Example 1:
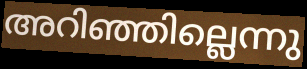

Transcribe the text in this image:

അറിഞ്ഞില്ലെന്നു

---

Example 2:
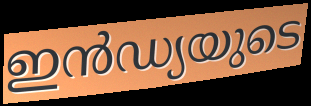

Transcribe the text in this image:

ഇൻഡ്യയുടെ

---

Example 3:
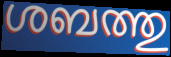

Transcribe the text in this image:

ശബത്തു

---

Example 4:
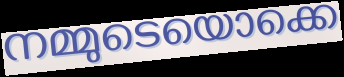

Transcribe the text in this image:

നമ്മുടെയൊക്കെ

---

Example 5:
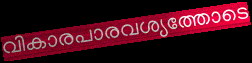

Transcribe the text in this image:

വികാരപാരവശ്യത്തോടെ